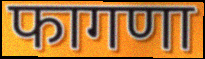
फागणा